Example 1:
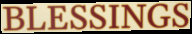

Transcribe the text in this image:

BLESSINGS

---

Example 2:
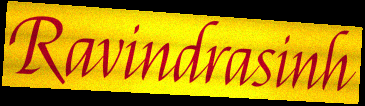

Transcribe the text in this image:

Ravindrasinh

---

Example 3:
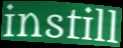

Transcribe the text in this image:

instill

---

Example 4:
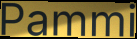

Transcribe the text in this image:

Pammi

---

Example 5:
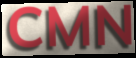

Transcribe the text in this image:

CMN